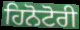
ਹਿਨੋਟੋਰੀ